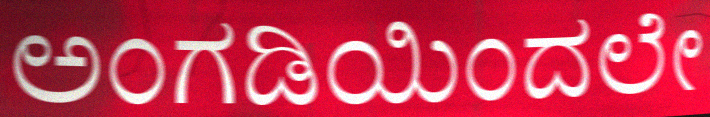
ಅಂಗಡಿಯಿಂದಲೇ